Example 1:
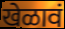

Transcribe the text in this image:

खेळावं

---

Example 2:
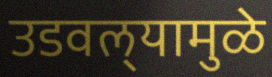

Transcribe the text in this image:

उडवल्यामुळे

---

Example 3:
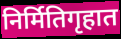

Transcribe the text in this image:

निर्मितिगृहात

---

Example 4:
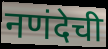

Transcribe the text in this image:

नणंदेची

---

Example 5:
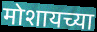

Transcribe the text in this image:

मोशायच्या